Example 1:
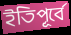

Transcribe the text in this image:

ইতিপূর্বে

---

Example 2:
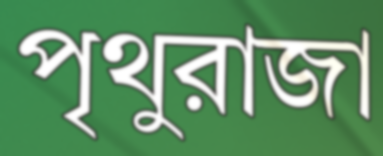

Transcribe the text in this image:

পৃথুরাজা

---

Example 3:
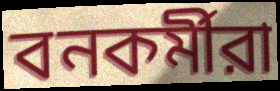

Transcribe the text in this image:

বনকর্মীরা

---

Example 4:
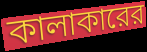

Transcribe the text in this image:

কালাকারের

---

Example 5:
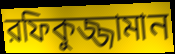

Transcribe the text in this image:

রফিকুজ্জামান